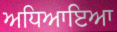
ਅਧਿਆਇਆ